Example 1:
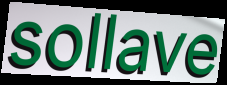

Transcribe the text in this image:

sollave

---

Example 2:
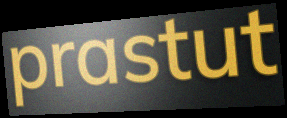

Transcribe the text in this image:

prastut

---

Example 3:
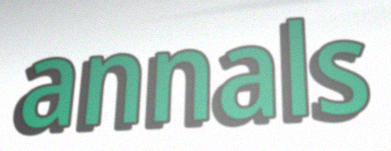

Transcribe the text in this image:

annals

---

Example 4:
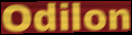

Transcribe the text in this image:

Odilon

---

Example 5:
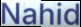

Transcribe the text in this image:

Nahid